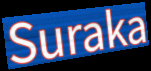
Suraka